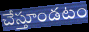
చేస్తూండటం